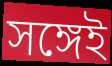
সঙ্গেই